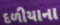
દળીયાના